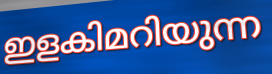
ഇളകിമറിയുന്ന